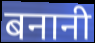
बनानी